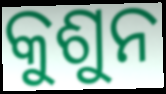
କୁଶୁନ